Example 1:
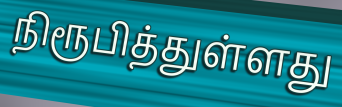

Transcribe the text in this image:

நிரூபித்துள்ளது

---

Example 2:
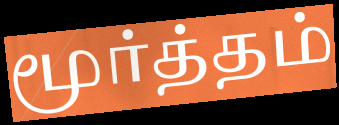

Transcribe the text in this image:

மூர்த்தம்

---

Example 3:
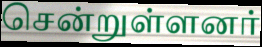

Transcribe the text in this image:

சென்றுள்ளனர்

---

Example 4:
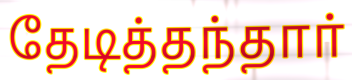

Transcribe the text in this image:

தேடித்தந்தார்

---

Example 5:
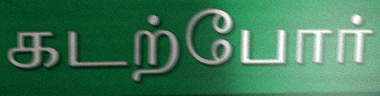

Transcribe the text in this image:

கடற்போர்